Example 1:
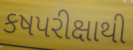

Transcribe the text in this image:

કષપરીક્ષાથી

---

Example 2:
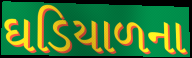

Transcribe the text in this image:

ઘડિયાળના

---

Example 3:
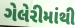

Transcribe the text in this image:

ગેલેરીમાંથી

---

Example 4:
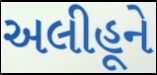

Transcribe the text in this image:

અલીહૂને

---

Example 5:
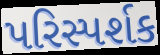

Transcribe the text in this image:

પરિસ્પર્શક